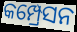
କମ୍ପ୍ରେସନ